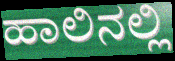
ಹಾಲಿನಲ್ಲಿ